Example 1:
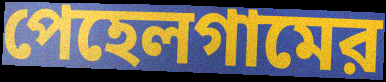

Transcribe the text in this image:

পেহেলগামের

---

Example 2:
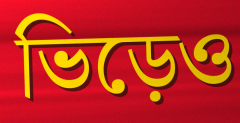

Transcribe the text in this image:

ভিড়েও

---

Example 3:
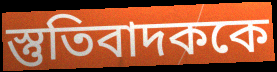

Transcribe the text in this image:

স্তুতিবাদককে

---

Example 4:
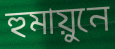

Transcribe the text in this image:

হুমায়ুনে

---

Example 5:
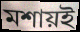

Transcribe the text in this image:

মশায়ই